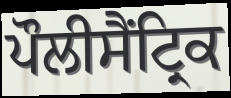
ਪੌਲੀਸੈਂਟ੍ਰਿਕ